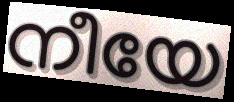
നീയേ